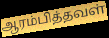
ஆரம்பித்தவள்